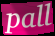
pall